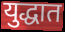
युद्धात